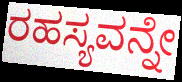
ರಹಸ್ಯವನ್ನೇ